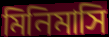
মিনিমাসি